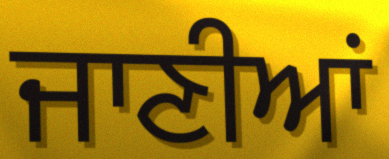
ਜਾਣੀਆਂ